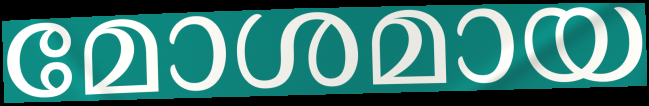
മോശമായ